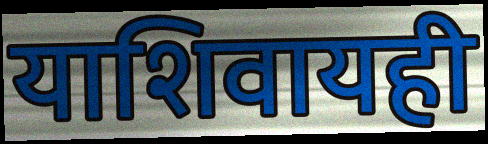
याशिवायही